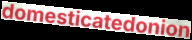
domesticatedonion